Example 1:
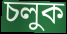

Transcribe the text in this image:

চলুক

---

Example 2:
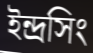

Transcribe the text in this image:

ইন্দ্রসিং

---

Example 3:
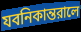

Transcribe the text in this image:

যবনিকান্তরালে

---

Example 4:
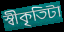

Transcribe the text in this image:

স্বীকৃতিটা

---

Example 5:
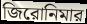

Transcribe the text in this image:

জিরোনিমার